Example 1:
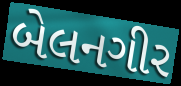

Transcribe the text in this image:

બેલનગીર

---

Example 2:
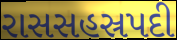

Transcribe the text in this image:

રાસસહસ્રપદી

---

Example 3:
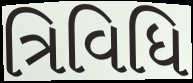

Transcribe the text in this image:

ત્રિવિધિ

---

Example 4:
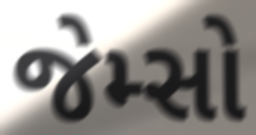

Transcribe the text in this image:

જેમ્સો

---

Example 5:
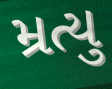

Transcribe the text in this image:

મ્રત્યુ